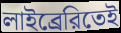
লাইব্রেরিতেই